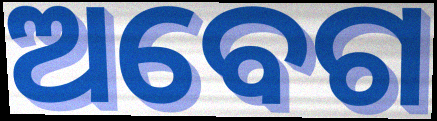
ଅବେଗ